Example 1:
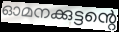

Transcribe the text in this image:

ഓമനക്കുട്ടന്റെ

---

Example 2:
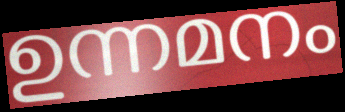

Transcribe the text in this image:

ഉന്നമനം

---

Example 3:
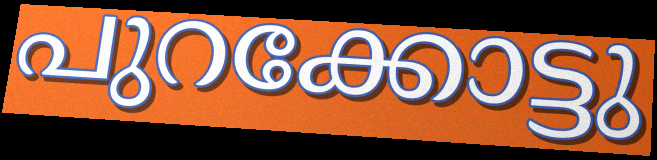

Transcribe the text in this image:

പുറക്കോട്ടു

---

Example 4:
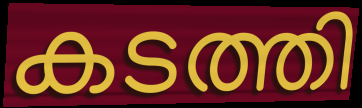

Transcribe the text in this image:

കടത്തി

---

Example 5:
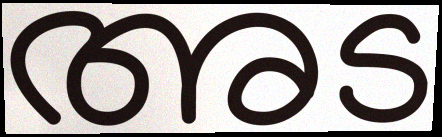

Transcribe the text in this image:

അട